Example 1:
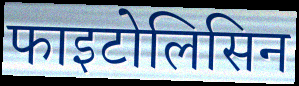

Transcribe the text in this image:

फाइटोलिसिन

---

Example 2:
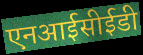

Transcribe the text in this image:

एनआईसीईडी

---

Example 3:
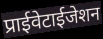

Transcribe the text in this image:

प्राईवेटाईजेशन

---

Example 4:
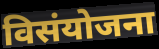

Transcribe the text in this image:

विसंयोजना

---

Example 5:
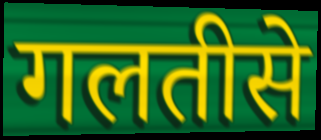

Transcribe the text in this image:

गलतीसे